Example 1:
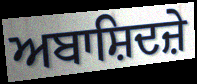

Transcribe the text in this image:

ਅਬਾਸ਼ਿਦਜ਼ੇ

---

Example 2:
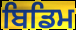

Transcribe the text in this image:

ਬਿਡਿਮ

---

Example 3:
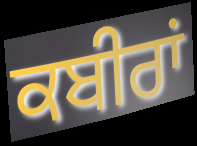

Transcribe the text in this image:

ਕਬੀਰਾਂ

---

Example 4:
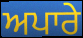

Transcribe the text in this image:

ਅਪਾਰੇ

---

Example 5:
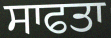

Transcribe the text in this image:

ਸਾਫਤਾ